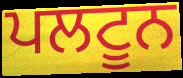
ਪਲਟੂਨ